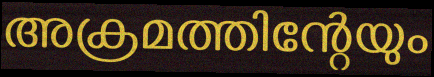
അക്രമത്തിന്റേയും